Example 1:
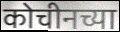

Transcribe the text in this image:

कोचीनच्या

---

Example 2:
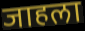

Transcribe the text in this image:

जाहला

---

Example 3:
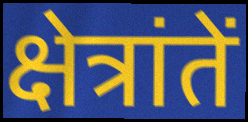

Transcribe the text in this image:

क्षेत्रांतें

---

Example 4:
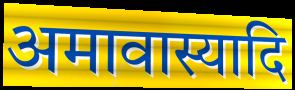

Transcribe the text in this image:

अमावास्यादि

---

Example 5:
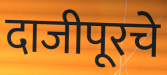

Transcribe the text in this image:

दाजीपूरचे